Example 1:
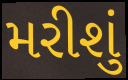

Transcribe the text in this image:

મરીશું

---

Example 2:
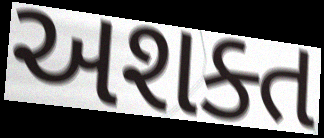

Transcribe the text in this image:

અશક્ત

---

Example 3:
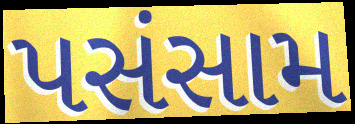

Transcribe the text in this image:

પસંસામ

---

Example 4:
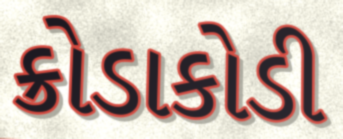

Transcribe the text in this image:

ક્રોડાકોડી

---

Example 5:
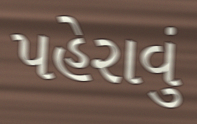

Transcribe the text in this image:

પહેરાવું